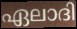
ഏലാദി